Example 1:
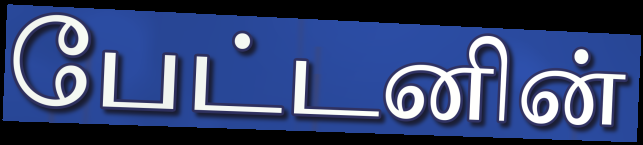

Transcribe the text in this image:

பேட்டனின்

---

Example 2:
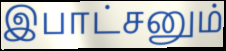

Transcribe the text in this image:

இபாட்சனும்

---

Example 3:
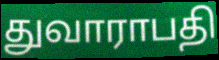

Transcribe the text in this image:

துவாராபதி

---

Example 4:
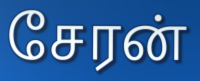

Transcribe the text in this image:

சேரன்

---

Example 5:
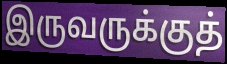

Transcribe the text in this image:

இருவருக்குத்